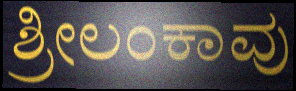
ಶ್ರೀಲಂಕಾವು